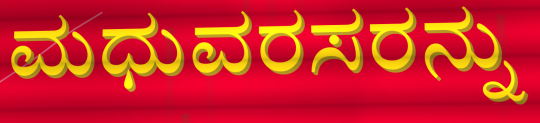
ಮಧುವರಸರನ್ನು